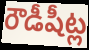
రౌడీషీట్ల